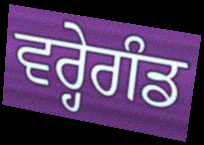
ਵਰ੍ਹੇਗੰਡ